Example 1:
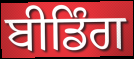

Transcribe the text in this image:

ਬੀਡਿੰਗ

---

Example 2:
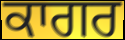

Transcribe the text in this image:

ਕਾਗਰ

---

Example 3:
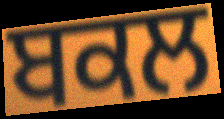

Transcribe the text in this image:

ਬਕਲ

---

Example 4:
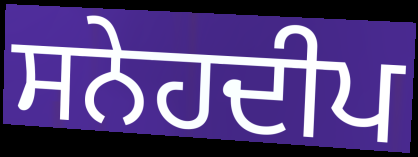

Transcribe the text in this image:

ਸਨੇਹਦੀਪ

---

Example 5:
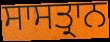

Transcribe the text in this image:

ਸਾਸਤ੍ਰਾਨ